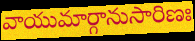
వాయుమార్గానుసారిణః